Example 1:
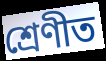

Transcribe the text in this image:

শ্ৰেণীত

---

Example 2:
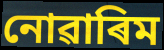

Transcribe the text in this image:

নোৱাৰিম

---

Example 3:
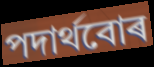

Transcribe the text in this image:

পদাৰ্থবোৰ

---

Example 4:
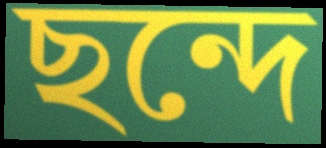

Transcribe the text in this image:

ছন্দে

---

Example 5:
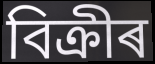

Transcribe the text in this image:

বিক্ৰীৰ